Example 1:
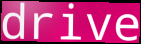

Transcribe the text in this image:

drive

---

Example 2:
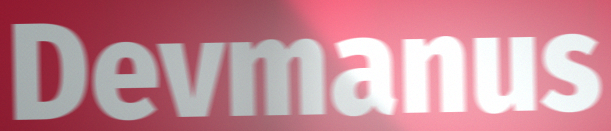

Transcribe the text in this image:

Devmanus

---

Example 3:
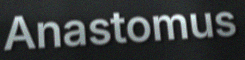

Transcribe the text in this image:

Anastomus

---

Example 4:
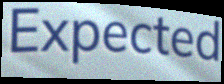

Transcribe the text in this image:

Expected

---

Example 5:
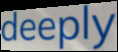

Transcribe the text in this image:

deeply